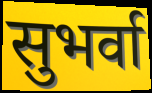
सुभर्वा